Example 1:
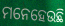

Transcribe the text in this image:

ମନେହେଉଛି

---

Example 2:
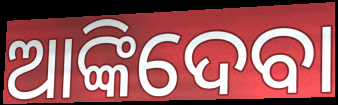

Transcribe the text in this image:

ଆଙ୍କିଦେବା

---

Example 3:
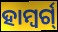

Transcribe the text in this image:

ହାମ୍ବର୍ଗ୍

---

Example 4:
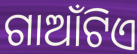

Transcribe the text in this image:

ଗାଆଁଟିଏ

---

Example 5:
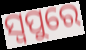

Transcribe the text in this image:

ସ୍ୱପୁରେ